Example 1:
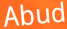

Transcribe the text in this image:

Abud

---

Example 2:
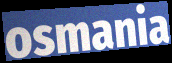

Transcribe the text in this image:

osmania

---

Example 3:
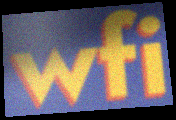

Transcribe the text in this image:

wfi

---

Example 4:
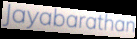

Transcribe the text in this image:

Jayabarathan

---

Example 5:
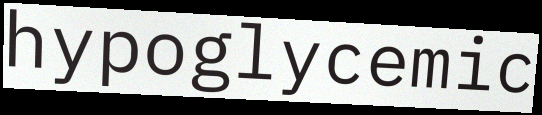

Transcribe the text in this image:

hypoglycemic